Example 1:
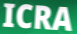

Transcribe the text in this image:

ICRA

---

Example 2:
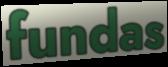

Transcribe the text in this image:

fundas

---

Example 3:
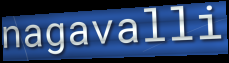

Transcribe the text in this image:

nagavalli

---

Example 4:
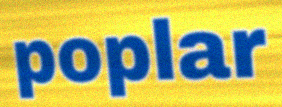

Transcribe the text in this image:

poplar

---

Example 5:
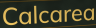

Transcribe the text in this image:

Calcarea